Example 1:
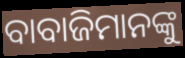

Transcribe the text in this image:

ବାବାଜିମାନଙ୍କୁ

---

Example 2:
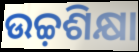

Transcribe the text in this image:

ଉଚ୍ଚ଼ଶିକ୍ଷା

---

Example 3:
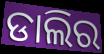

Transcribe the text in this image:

ଡାଲିର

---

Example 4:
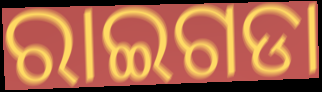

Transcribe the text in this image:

ରାଇଗଡା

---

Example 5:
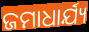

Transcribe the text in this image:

ଜମାଧାର୍ଯ୍ୟ